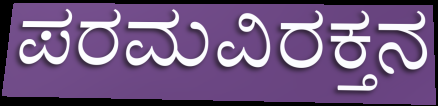
ಪರಮವಿರಕ್ತನ